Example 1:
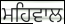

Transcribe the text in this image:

ਮਹਿਵਾਲ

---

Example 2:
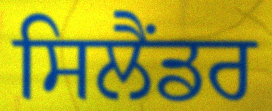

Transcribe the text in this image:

ਸਿਲੈਂਡਰ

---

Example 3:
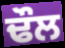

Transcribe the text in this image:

ਢੌਲ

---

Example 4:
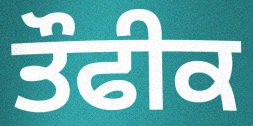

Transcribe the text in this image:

ਤੌਫੀਕ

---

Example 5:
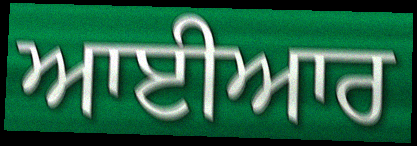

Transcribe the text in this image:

ਆਈਆਰ